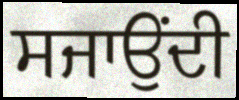
ਸਜਾਉਂਦੀ